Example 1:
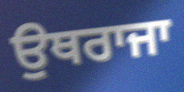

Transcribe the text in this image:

ਉਥਰਾਜਾ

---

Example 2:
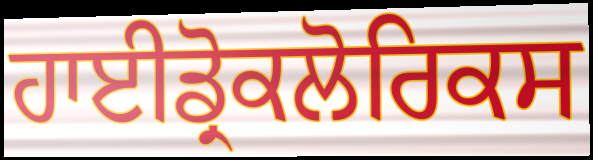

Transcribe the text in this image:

ਹਾਈਡ੍ਰੋਕਲੋਰਿਕਸ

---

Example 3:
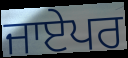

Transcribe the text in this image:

ਜਾਏਪਰ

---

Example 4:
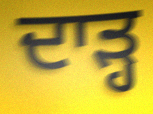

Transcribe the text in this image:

ਦਾੜ੍ਹ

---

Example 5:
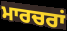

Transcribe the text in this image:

ਮਾਰਚਰਾਂ